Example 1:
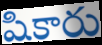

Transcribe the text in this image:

షికారు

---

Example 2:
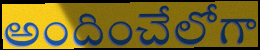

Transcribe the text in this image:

అందించేలోగా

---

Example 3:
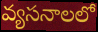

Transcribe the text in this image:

వ్యసనాలలో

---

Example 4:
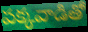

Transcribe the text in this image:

పక్కవాడితో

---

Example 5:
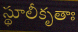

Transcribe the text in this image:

స్థూలీకృతాః